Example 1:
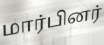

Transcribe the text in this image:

மார்பினர்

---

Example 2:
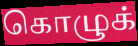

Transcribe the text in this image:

கொழுக்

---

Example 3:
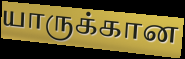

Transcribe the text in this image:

யாருக்கான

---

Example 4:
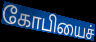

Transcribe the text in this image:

கோபியைச்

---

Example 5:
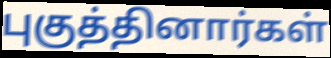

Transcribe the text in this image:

புகுத்தினார்கள்